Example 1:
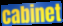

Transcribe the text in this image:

cabinet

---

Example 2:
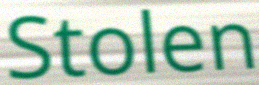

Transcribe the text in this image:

Stolen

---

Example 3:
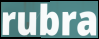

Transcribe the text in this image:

rubra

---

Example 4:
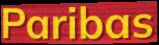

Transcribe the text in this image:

Paribas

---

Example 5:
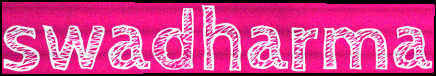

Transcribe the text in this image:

swadharma